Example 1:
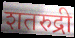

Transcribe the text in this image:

शतरुद्री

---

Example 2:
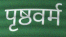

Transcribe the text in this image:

पृष्ठवर्म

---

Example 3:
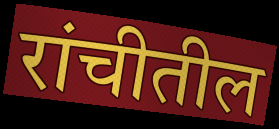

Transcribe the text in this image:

रांचीतील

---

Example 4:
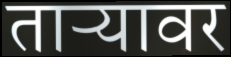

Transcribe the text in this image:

ताऱ्यावर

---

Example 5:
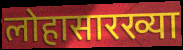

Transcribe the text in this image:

लोहासारख्या